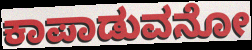
ಕಾಪಾಡುವನೋ